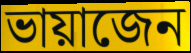
ভায়াজেন